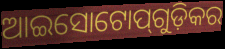
ଆଇସୋଟୋପ୍‌ଗୁଡ଼ିକର